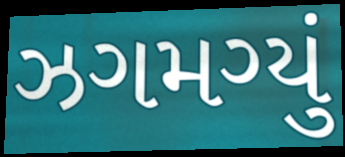
ઝગમગ્યું